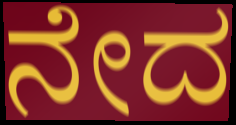
ನೇದ